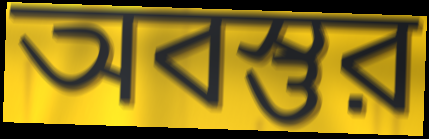
অবস্তুর